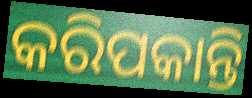
କରିପକାନ୍ତି